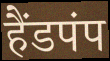
हैंडपंप